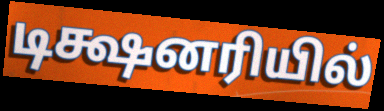
டிக்ஷனரியில்